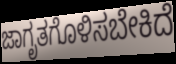
ಜಾಗೃತಗೊಳಿಸಬೇಕಿದೆ